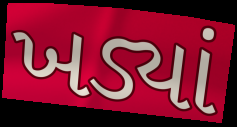
ખડ્યાં